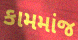
કામમાંજ